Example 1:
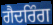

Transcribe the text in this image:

ਗੈਦਰਿੰਗ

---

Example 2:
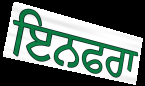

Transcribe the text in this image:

ਇਨਫਰਾ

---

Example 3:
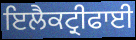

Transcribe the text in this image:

ਇਲੈਕਟ੍ਰੀਫਾਈ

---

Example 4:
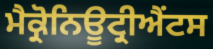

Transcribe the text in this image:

ਮੈਕ੍ਰੋਨਿਊਟ੍ਰੀਐਂਟਸ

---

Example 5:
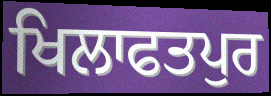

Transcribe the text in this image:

ਖਿਲਾਫਤਪੁਰ